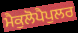
ਮੈਕੁਲੋਪੈਪੁਲਰ